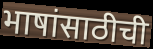
भाषांसाठीची